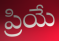
ప్రియే